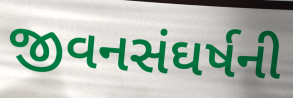
જીવનસંઘર્ષની